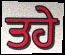
ਤਹੇ